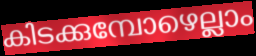
കിടക്കുമ്പോഴെല്ലാം